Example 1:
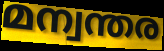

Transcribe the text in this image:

മന്വന്തര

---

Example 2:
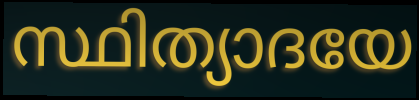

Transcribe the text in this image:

സ്ഥിത്യാദയേ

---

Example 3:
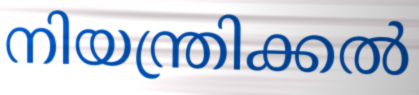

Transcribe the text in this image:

നിയന്ത്രിക്കൽ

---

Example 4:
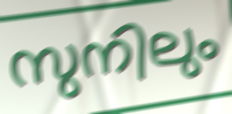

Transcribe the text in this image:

സുനിലും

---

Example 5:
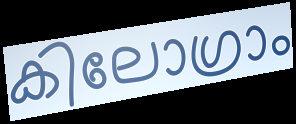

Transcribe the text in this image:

കിലോഗ്രാം